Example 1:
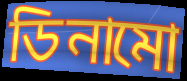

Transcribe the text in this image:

ডিনামো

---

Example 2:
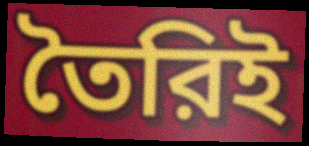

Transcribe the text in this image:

তৈরিই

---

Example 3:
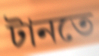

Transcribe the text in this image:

টানতে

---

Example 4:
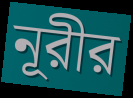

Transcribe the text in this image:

নূরীর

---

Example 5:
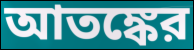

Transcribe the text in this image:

আতঙ্কের